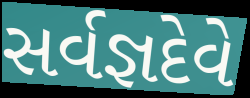
સર્વજ્ઞદેવે